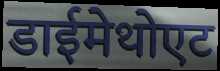
डाईमेथोएट